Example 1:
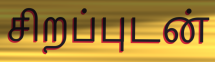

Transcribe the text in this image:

சிறப்புடன்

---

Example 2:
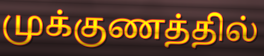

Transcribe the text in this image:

முக்குணத்தில்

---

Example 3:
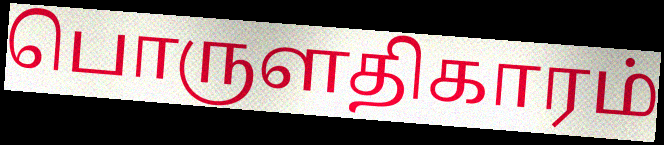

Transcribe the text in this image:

பொருளதிகாரம்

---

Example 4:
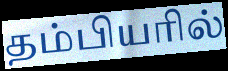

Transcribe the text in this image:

தம்பியரில்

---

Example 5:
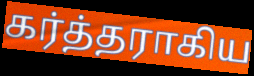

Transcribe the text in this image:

கர்த்தராகிய